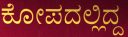
ಕೋಪದಲ್ಲಿದ್ದ